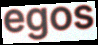
egos